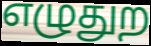
எழுதுற